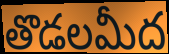
తొడలమీద